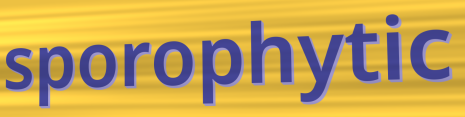
sporophytic